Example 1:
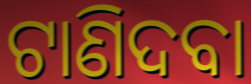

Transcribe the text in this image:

ଟାଣିଦବା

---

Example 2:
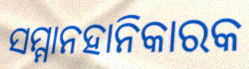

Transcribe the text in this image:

ସମ୍ମାନହାନିକାରକ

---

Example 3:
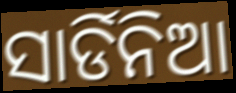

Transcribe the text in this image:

ସାର୍ଡିନିଆ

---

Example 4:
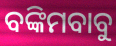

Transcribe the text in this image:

ବଙ୍କିମବାବୁ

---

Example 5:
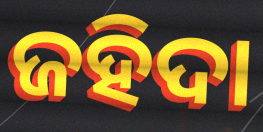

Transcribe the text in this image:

ଜହିଦା